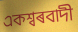
একশ্বৰবাদী